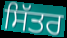
ਸਿੱਤਰ